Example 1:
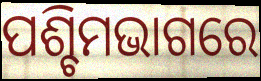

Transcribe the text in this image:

ପଶ୍ଚିମଭାଗରେ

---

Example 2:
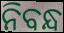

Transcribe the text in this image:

ନିବନ୍ଧ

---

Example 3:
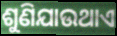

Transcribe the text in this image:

ଶୁଣିଯାଉଥାଏ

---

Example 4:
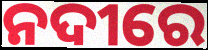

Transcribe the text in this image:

ନଦୀରେ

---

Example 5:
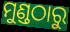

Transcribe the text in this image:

ମୁଣ୍ଡଠାରୁ